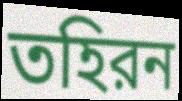
তহিরন